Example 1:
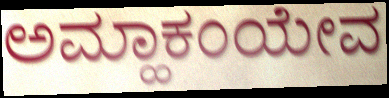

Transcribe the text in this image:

ಅಮ್ಹಾಕಂಯೇವ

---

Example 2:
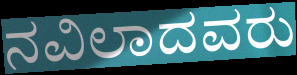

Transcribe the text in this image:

ನವಿಲಾದವರು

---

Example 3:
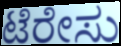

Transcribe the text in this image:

ಟೆರೇಸು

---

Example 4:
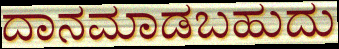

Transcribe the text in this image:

ದಾನಮಾಡಬಹುದು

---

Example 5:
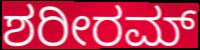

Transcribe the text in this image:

ಶರೀರಮ್